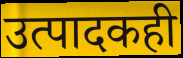
उत्पादकही